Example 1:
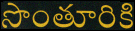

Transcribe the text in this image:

సొంతూరికి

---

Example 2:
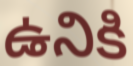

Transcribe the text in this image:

ఉనికి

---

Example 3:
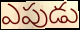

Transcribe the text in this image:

ఎపుడు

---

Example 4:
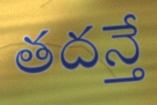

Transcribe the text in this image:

తదన్తే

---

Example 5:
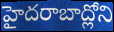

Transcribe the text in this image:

హైదరాబాద్లోని